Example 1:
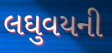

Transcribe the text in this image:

લઘુવયની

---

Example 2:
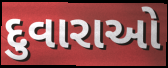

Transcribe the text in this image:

દુવારાઓ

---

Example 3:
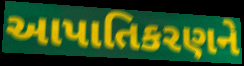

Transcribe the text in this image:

આપાતિકરણને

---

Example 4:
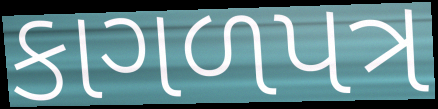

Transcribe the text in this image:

કાગળપત્ર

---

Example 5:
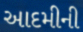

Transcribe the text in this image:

આદમીની